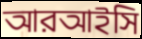
আরআইসি